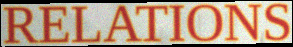
RELATIONS